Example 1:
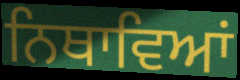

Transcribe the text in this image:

ਨਿਥਾਵਿਆਂ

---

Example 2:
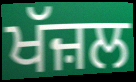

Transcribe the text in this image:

ਖੱਜ਼ਲ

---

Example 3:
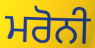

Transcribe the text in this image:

ਮਰੋਨੀ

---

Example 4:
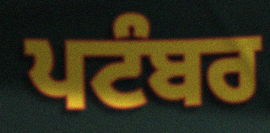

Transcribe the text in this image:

ਪਟੰਬਰ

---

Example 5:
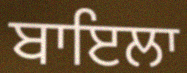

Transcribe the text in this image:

ਬਾਇਲਾ